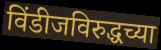
विंडीजविरुद्धच्या